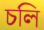
চলি